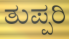
ತುಪ್ಪರಿ